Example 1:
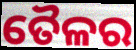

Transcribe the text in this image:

ତୈଳର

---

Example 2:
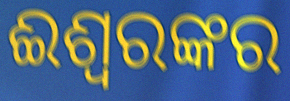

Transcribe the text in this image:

ଈଶ୍ୱରଙ୍କର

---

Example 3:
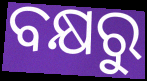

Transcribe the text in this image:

ବକ୍ଷରୁ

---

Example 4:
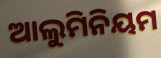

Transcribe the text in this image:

ଆଲୁମିନିୟମ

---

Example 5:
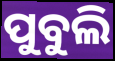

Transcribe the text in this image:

ପୁବୁଲି